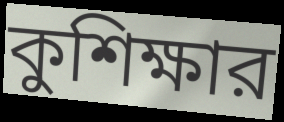
কুশিক্ষার